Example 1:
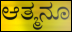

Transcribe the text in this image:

ಆತ್ಮನೂ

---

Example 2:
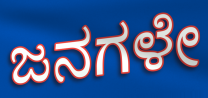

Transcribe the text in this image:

ಜನಗಳೇ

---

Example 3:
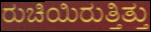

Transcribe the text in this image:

ರುಚಿಯಿರುತ್ತಿತ್ತು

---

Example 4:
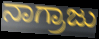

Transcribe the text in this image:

ನಾಗ್ರಾಜು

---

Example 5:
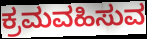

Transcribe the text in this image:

ಕ್ರಮವಹಿಸುವ